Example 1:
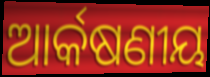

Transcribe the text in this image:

ଆର୍କଷଣୀୟ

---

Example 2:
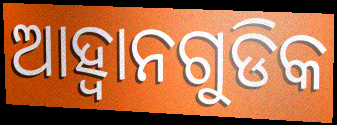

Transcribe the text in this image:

ଆହ୍ୱାନଗୁଡିକ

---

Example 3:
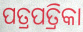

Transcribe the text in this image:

ପତ୍ରପତ୍ରିକା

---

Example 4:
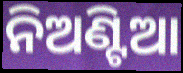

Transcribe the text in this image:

ନିଅଣ୍ଟିଆ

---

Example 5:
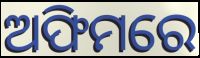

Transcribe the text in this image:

ଅଫିମରେ